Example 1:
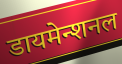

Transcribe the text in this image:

डायमेन्शनल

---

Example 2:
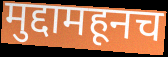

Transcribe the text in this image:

मुद्दामहूनच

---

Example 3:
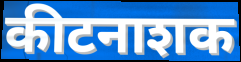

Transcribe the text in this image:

कीटनाशक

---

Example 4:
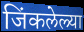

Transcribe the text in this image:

जिंकलेल्या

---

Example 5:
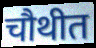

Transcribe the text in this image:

चौथीत